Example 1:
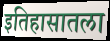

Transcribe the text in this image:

इतिहासातला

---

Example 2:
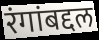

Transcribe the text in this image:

रंगांबद्दल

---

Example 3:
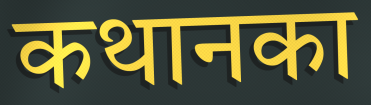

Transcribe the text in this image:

कथानका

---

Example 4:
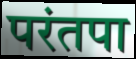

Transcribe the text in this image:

परंतपा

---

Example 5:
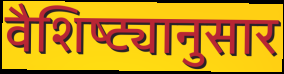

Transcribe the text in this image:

वैशिष्ट्यानुसार